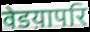
वेडय़ापरि